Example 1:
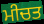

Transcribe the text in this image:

ਮੀਚਤ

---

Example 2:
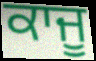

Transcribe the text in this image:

ਕਾਜੂ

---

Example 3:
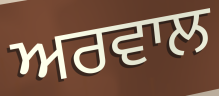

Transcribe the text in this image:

ਅਰਵਾਲ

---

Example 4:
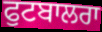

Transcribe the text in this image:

ਫੁਟਬਾਲਰਾ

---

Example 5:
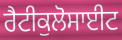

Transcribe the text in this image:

ਰੈਟੀਕੁਲੋਸਾਈਟ